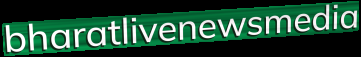
bharatlivenewsmedia